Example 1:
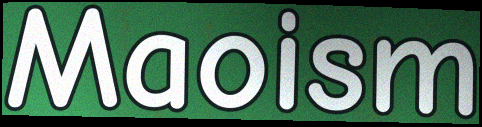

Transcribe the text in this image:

Maoism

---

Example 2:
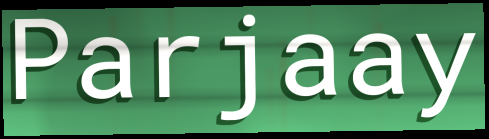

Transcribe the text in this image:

Parjaay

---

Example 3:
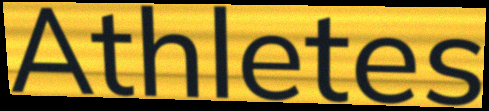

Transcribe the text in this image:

Athletes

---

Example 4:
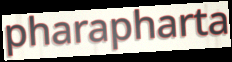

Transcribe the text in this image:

pharapharta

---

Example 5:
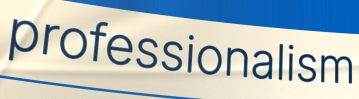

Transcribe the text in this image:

professionalism